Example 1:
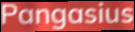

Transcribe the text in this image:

Pangasius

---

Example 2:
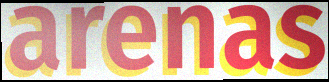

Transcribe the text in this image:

arenas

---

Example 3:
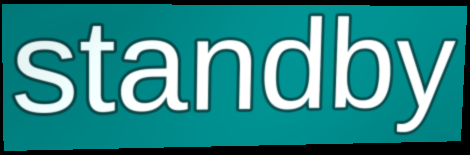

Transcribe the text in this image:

standby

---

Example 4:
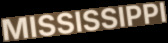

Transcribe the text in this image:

MISSISSIPPI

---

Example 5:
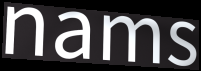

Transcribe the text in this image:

nams